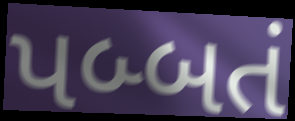
પબ્બતં